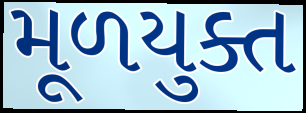
મૂળયુક્ત